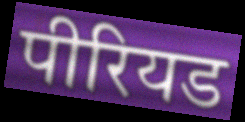
पीरियड